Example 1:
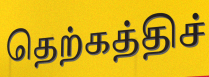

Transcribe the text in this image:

தெற்கத்திச்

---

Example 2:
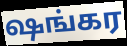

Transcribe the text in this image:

ஷங்கர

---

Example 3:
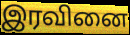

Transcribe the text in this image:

இரவினை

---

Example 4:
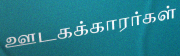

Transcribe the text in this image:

ஊடகக்காரர்கள்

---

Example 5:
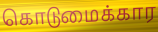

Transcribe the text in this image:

கொடுமைக்கார